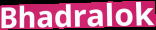
Bhadralok